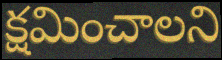
క్షమించాలని